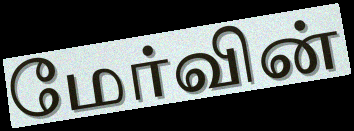
மேர்வின்